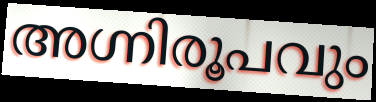
അഗ്നിരൂപവും